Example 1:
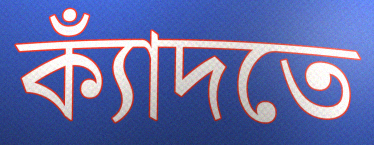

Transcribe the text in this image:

ক্যাঁদতে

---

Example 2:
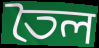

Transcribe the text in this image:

তৈল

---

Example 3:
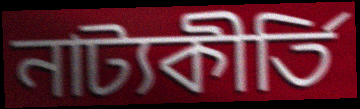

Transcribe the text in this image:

নাট্যকীর্তি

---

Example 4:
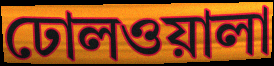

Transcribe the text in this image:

ঢোলওয়ালা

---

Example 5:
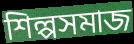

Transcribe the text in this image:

শিল্পসমাজ